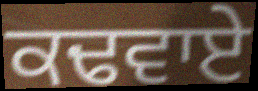
ਕਢਵਾਏ